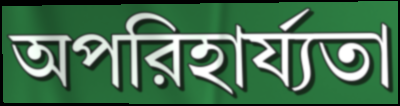
অপরিহার্য্যতা